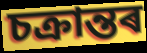
চক্ৰান্তৰ